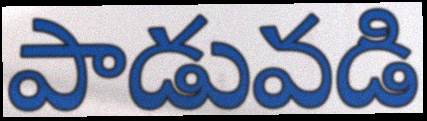
పాడువడి